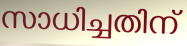
സാധിച്ചതിന്